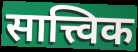
सात्त्विक